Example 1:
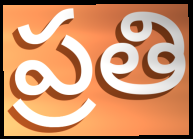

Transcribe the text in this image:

ప్రతి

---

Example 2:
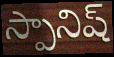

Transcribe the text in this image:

స్పానిష్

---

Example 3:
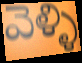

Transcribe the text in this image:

వెళ్ళి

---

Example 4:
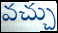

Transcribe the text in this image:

వచ్చు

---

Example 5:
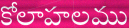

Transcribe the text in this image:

కోలాహలము